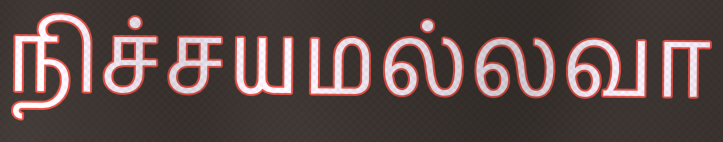
நிச்சயமல்லவா